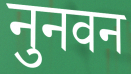
नुनवन